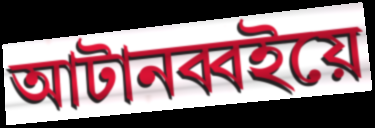
আটানব্বইয়ে